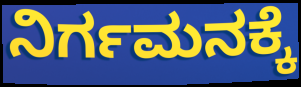
ನಿರ್ಗಮನಕ್ಕೆ